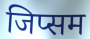
जिप्सम